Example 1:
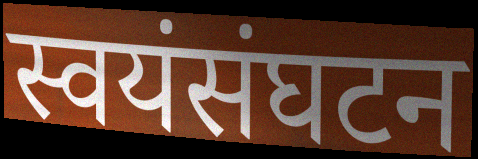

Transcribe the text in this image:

स्वयंसंघटन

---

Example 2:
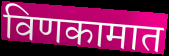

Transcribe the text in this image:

विणकामात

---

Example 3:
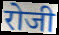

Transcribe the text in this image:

रोजी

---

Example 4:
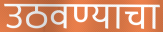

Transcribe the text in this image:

उठवण्याचा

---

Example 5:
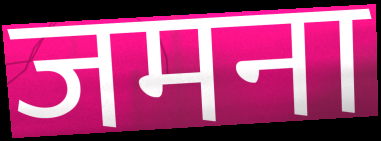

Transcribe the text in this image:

जमना